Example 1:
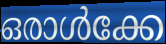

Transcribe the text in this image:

ഒരാൾക്കേ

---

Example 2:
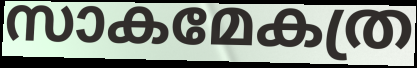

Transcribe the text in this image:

സാകമേകത്ര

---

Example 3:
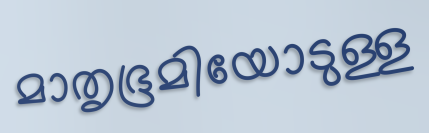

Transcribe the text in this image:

മാതൃഭൂമിയോടുള്ള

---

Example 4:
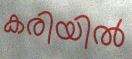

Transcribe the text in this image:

കരിയിൽ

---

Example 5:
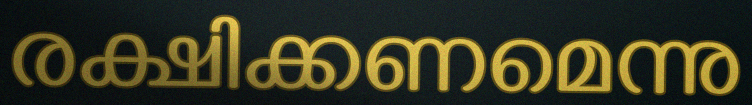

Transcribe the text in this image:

രക്ഷിക്കണമെന്നു